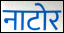
नाटोर